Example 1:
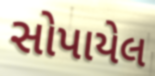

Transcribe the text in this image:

સોપાયેલ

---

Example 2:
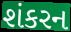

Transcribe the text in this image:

શંકરન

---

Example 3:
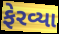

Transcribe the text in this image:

ફેરવ્યા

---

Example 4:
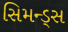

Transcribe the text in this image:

સિમન્ડ્સ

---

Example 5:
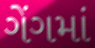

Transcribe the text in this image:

ગેંગમાં